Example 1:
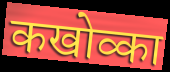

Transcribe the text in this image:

कखोव्का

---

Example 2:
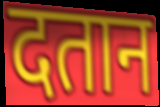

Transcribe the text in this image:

दतान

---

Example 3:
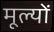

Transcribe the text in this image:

मूल्यों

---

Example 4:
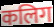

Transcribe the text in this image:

कलिग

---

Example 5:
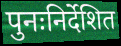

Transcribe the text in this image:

पुनःनिर्देशित